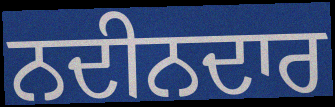
ਨਦੀਨਦਾਰ